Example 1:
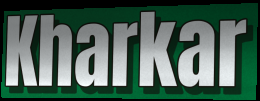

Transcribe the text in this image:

Kharkar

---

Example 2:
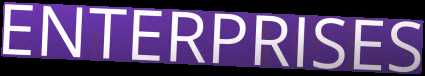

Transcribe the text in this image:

ENTERPRISES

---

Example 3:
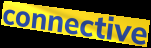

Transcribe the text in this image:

connective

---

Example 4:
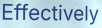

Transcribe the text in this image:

Effectively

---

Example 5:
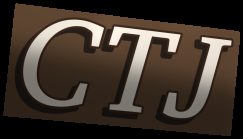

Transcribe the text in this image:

CTJ